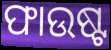
ଫାଉଷ୍ଟ